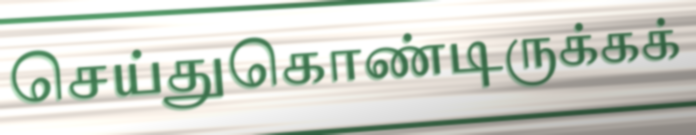
செய்துகொண்டிருக்கக்